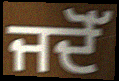
ਜਦੋੱ